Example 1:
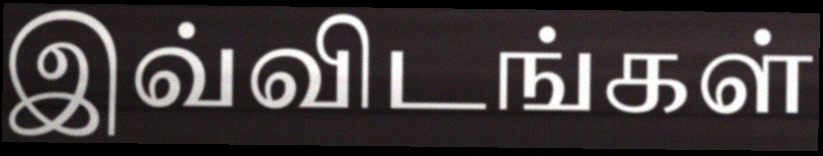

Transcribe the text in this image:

இவ்விடங்கள்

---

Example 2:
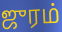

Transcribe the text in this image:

ஜுரம்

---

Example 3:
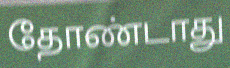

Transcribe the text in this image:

தோண்டாது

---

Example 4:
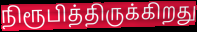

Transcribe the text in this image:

நிரூபித்திருக்கிறது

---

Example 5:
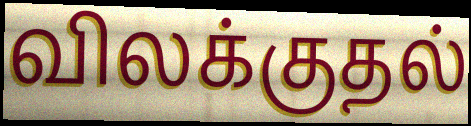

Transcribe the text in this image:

விலக்குதல்